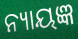
ନ୍ୟାୟଜ୍ଞ